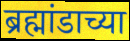
ब्रह्मांडाच्या